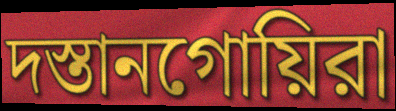
দস্তানগোয়িরা